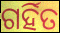
ଗର୍ହିତ